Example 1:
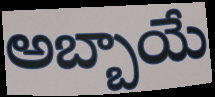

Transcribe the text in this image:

అబ్బాయే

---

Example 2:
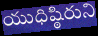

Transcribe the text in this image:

యుధిష్ఠిరుని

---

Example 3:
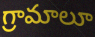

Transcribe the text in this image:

గ్రామాలూ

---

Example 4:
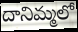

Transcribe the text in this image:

దానిమ్మలో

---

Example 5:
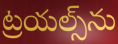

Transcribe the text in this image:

ట్రయల్స్‌ను